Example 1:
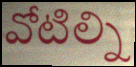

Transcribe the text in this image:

వోటిల్ని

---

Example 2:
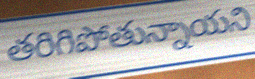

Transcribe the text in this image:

తరిగిపోతున్నాయని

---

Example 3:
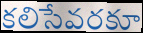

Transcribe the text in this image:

కలిసేవరకూ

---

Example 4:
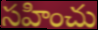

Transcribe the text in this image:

సహించు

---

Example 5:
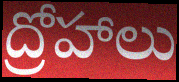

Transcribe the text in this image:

ద్రోహాలు